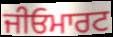
ਜੀਓਮਾਰਟ